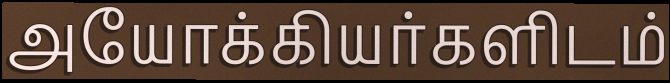
அயோக்கியர்களிடம்